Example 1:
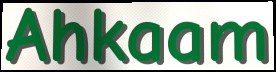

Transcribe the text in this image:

Ahkaam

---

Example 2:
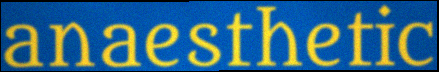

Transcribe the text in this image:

anaesthetic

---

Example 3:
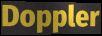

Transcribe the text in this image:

Doppler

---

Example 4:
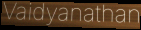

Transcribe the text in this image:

Vaidyanathan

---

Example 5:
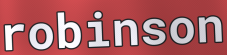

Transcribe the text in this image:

robinson